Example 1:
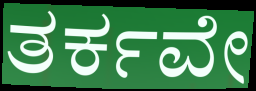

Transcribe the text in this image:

ತರ್ಕವೇ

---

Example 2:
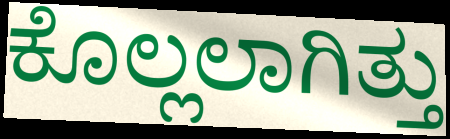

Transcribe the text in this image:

ಕೊಲ್ಲಲಾಗಿತ್ತು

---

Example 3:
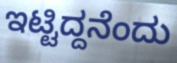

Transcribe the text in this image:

ಇಟ್ಟಿದ್ದನೆಂದು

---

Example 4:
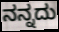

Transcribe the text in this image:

ನನ್ನದು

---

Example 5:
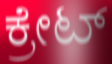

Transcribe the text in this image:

ಕ್ರೇಟ್